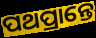
ପଥପ୍ରାନ୍ତେ